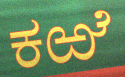
ಕಱೆ